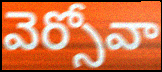
వెర్సోవా